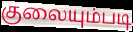
குலையும்படி